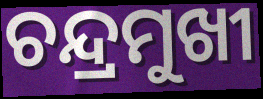
ଚନ୍ଦ୍ରମୁଖୀ